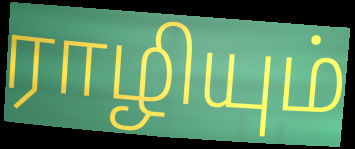
ராழியும்